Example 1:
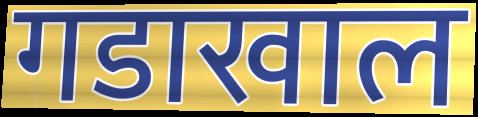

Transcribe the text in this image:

गडाखाल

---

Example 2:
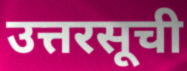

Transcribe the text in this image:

उत्तरसूची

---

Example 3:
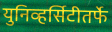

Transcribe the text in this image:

युनिव्हर्सिटीतर्फे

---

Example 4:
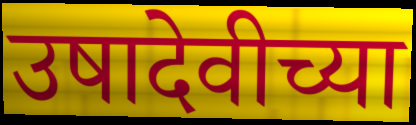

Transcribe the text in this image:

उषादेवीच्या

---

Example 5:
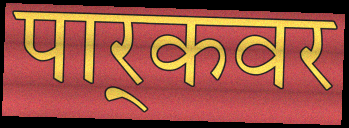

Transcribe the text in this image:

पार्कवर